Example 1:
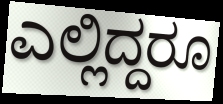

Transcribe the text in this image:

ಎಲ್ಲಿದ್ದರೂ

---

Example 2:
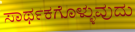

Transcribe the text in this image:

ಸಾರ್ಥಕಗೊಳ್ಳುವುದು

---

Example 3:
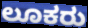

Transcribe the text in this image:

ಲೂಕರು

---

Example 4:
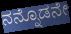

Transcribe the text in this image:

ನನ್ನೊಡನೇ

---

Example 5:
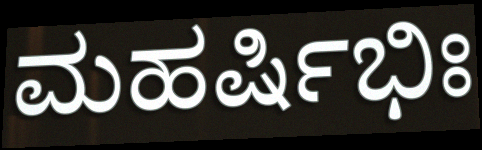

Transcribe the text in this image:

ಮಹರ್ಷಿಭಿಃ